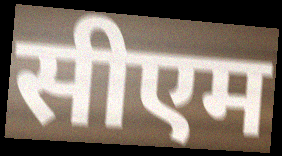
सीएम